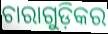
ଚାରାଗୁଡ଼ିକର